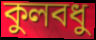
কুলবধু